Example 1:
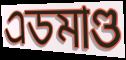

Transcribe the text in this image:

এডমাণ্ড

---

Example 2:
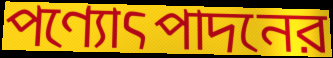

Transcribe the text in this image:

পণ্যোৎপাদনের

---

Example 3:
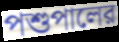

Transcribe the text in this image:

পশুপালের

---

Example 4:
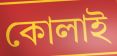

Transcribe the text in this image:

কোলাই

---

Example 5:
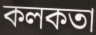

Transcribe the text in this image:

কলকতা